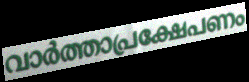
വാർത്താപ്രക്ഷേപണം